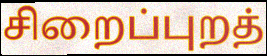
சிறைப்புறத்